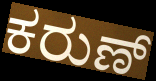
ಕರುಣ್